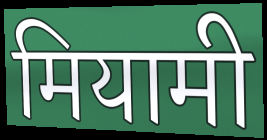
मियामी